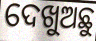
ଦେଖୁଅଛୁ